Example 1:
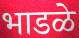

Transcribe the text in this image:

भाडळे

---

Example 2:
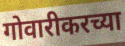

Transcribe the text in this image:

गोवारीकरच्या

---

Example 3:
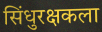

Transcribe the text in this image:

सिंधुरक्षकला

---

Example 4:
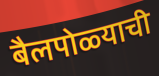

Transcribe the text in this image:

बैलपोळ्याची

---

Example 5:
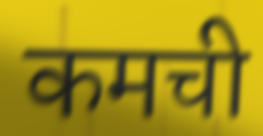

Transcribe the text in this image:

कमची